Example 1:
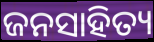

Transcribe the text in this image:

ଜନସାହିତ୍ୟ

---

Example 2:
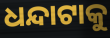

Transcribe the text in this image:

ଧନ୍ଦାଟାକୁ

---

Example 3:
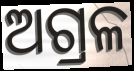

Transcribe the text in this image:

ଅଗ୍ରଳ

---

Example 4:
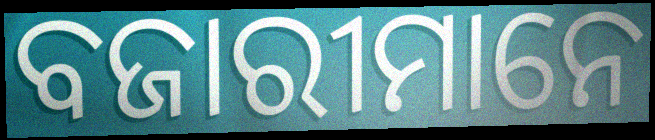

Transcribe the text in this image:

ବଜାରୀମାନେ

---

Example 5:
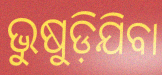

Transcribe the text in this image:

ଭୁଷୁଡ଼ିଯିବା